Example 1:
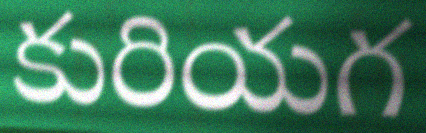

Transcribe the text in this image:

కురియగ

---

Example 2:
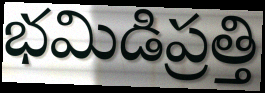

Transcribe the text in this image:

భమిడిప్రత్తి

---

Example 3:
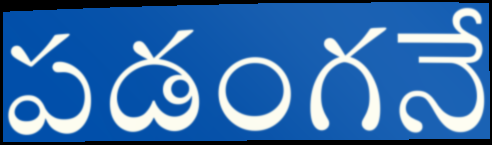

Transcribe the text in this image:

పడంగనే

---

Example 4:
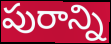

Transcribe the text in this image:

పురాన్ని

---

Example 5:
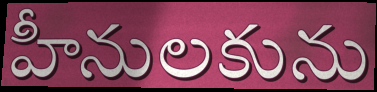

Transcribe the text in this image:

హీనులకును